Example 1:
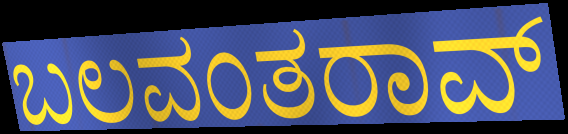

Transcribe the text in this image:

ಬಲವಂತರಾವ್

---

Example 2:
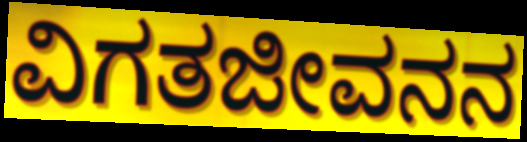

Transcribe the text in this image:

ವಿಗತಜೀವನನ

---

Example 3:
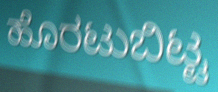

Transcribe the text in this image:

ಹೊರಟುಬಿಟ್ಟ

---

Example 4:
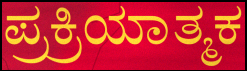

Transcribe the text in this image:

ಪ್ರಕ್ರಿಯಾತ್ಮಕ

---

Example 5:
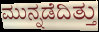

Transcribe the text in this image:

ಮುನ್ನಡೆದಿತ್ತು